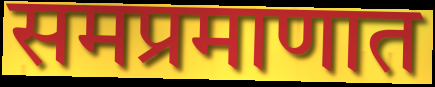
समप्रमाणात